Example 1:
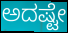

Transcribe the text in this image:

ಅದಷ್ಟೇ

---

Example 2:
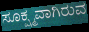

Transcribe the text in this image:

ಸೂಕ್ಷ್ಮವಾಗಿರುವ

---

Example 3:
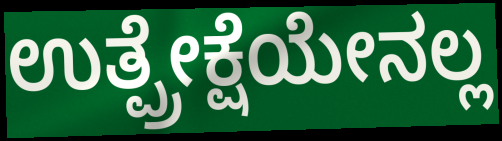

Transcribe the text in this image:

ಉತ್ಪ್ರೇಕ್ಷೆಯೇನಲ್ಲ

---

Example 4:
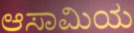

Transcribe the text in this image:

ಆಸಾಮಿಯ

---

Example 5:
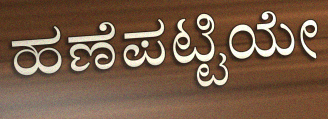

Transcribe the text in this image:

ಹಣೆಪಟ್ಟಿಯೇ